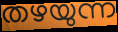
തഴയുന്ന